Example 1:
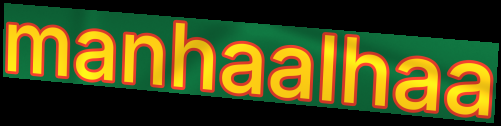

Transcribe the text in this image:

manhaalhaa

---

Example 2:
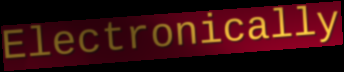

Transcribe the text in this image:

Electronically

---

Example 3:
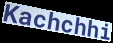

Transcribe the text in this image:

Kachchhi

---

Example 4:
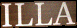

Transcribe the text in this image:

ILLA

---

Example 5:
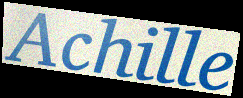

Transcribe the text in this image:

Achille